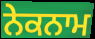
ਨੇਕਨਾਮ